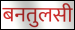
बनतुलसी